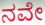
ನವೇ